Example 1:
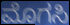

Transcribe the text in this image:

ಮೊಗಸಿ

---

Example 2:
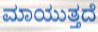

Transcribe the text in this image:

ಮಾಯುತ್ತದೆ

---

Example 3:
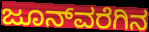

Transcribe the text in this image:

ಜೂನ್‌ವರೆಗಿನ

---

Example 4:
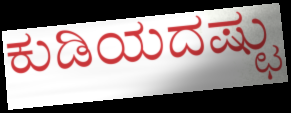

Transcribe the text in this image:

ಕುಡಿಯದಷ್ಟು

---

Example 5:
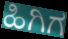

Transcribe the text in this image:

ಹಿಗಿಗ